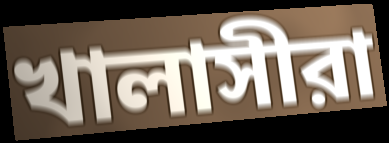
খালাসীরা